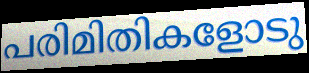
പരിമിതികളോടു